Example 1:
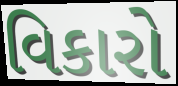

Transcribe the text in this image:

વિકારો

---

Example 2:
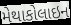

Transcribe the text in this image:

મેથાકોલાઇન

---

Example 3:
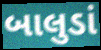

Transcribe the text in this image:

બાલુડાં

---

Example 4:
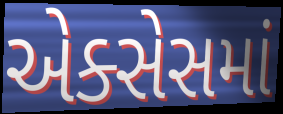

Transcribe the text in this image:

એક્સેસમાં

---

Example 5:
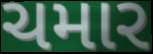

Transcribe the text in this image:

ચમાર